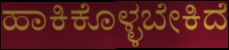
ಹಾಕಿಕೊಳ್ಳಬೇಕಿದೆ